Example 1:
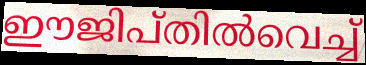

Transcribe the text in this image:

ഈജിപ്തിൽവെച്ച്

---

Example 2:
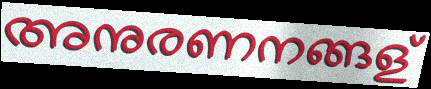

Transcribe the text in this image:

അനുരണനങ്ങള്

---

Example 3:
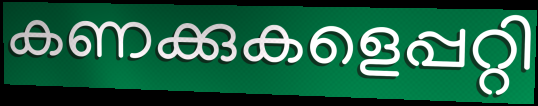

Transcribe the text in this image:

കണക്കുകളെപ്പറ്റി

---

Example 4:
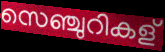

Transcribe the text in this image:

സെഞ്ചുറികള്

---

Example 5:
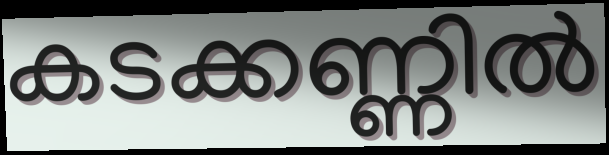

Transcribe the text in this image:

കടക്കണ്ണിൽ